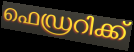
ഫെഡ്രറിക്ക്